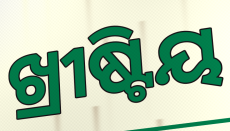
ଖ୍ରୀଷ୍ଟିୟ